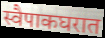
स्वैपाकघरात